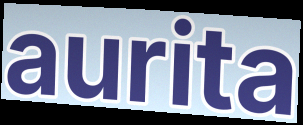
aurita